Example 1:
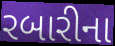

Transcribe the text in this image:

રબારીના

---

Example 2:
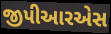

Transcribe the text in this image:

જીપીઆરએસ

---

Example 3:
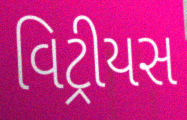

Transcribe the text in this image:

વિટ્રીયસ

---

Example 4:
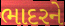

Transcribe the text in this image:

ભાદરને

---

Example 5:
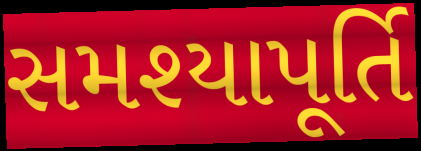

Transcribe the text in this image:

સમશ્યાપૂર્તિ